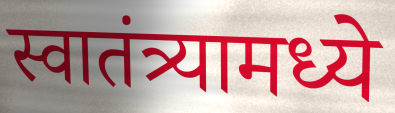
स्वातंत्र्यामध्ये